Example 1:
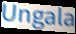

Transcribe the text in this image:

Ungala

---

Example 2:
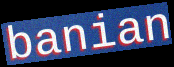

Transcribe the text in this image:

banian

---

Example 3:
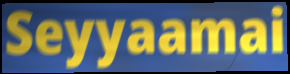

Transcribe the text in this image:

Seyyaamai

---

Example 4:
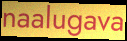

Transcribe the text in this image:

naalugava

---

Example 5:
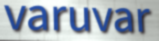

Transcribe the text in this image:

varuvar